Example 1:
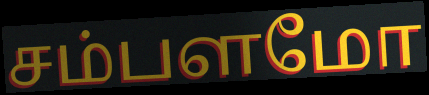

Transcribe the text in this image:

சம்பளமோ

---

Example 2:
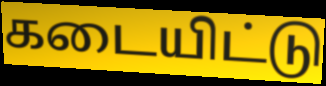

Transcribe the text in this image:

கடையிட்டு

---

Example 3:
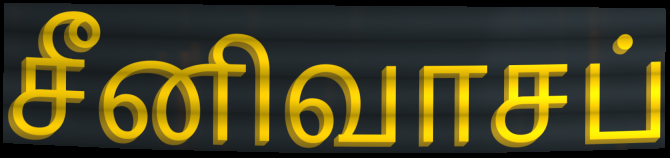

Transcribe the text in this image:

சீனிவாசப்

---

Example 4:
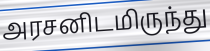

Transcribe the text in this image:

அரசனிடமிருந்து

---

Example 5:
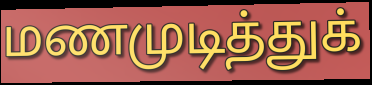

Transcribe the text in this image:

மணமுடித்துக்